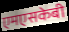
एमएसकेबी